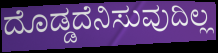
ದೊಡ್ಡದೆನಿಸುವುದಿಲ್ಲ